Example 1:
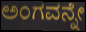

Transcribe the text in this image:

ಅಂಗವನ್ನೇ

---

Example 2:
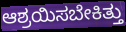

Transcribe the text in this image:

ಆಶ್ರಯಿಸಬೇಕಿತ್ತು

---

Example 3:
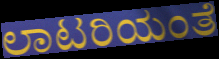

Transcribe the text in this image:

ಲಾಟರಿಯಂತೆ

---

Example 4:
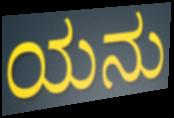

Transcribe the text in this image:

ಯನು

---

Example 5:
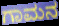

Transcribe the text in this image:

ಗಾಮನ